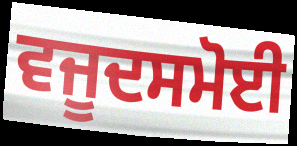
ਵਜੂਦਸਮੋਈ